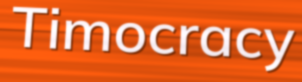
Timocracy